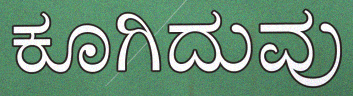
ಕೂಗಿದುವು